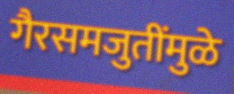
गैरसमजुतींमुळे